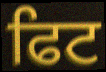
ਫਿਟ